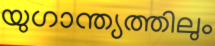
യുഗാന്ത്യത്തിലും